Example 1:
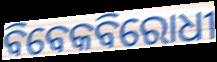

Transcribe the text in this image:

ବିବେକବିରୋଧୀ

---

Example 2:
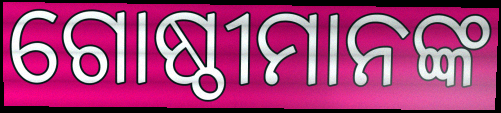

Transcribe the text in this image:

ଗୋଷ୍ଠୀମାନଙ୍କ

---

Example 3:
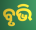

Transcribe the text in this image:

ବୃଭି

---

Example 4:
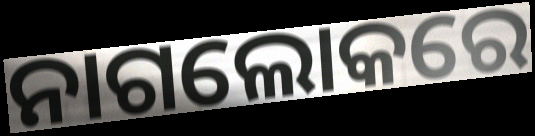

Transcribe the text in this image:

ନାଗଲୋକରେ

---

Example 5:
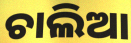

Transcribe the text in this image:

ଚାଲିଆ